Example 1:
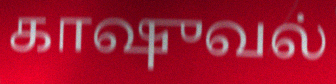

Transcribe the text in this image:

காஷுவல்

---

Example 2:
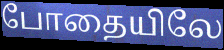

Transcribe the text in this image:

போதையிலே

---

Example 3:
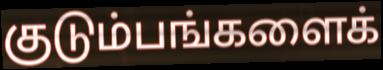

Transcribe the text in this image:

குடும்பங்களைக்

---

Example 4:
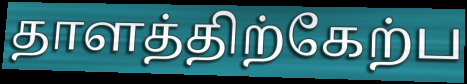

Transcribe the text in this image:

தாளத்திற்கேற்ப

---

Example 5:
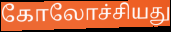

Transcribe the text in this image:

கோலோச்சியது